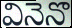
వినెనొ